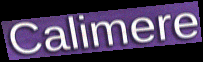
Calimere